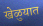
खेळुयात